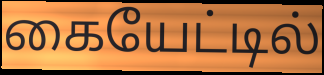
கையேட்டில்